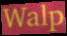
Walp